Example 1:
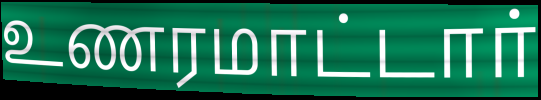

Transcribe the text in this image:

உணரமாட்டார்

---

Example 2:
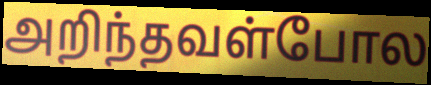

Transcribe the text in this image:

அறிந்தவள்போல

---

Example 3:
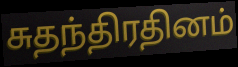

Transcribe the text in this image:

சுதந்திரதினம்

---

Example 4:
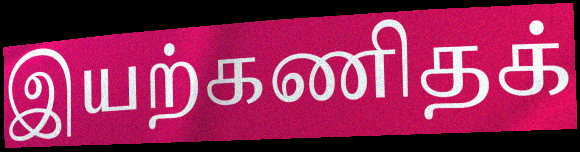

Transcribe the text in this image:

இயற்கணிதக்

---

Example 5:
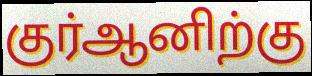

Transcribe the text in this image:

குர்ஆனிற்கு